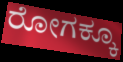
ರೋಗಕ್ಕೂ